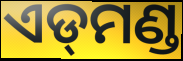
ଏଡ୍‌ମଣ୍ଡ